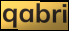
qabri